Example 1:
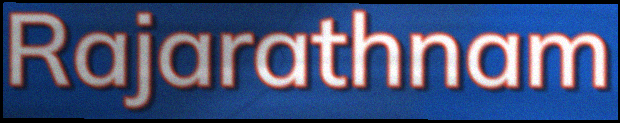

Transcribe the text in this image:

Rajarathnam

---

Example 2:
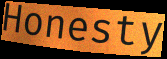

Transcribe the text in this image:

Honesty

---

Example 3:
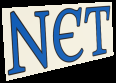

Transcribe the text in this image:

NET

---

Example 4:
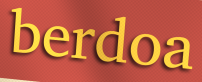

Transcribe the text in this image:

berdoa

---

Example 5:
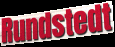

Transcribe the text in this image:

Rundstedt